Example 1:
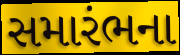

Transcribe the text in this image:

સમારંભના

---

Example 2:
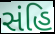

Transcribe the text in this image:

સંહિ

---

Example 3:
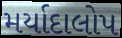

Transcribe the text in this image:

મર્યાદાલોપ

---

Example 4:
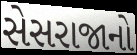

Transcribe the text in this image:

સેસરાજાનો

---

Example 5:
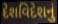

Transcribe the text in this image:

દેશવિદેશનું